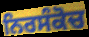
ਨਿਰਸੰਕੋਚ